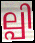
ല്പി